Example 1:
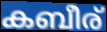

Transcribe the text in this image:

കബീര്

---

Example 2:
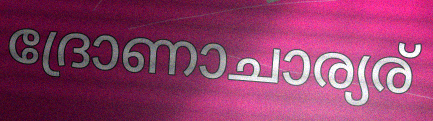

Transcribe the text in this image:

ദ്രോണാചാര്യര്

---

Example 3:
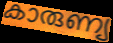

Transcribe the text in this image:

കാരുണ്യ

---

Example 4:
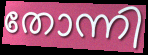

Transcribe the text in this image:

തോന്നി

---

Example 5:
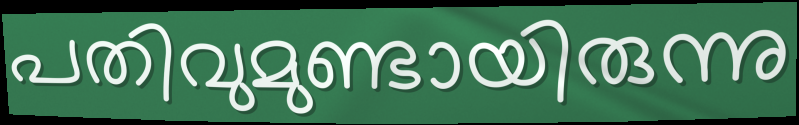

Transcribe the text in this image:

പതിവുമുണ്ടായിരുന്നു